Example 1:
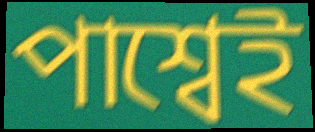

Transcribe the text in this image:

পাশ্বেই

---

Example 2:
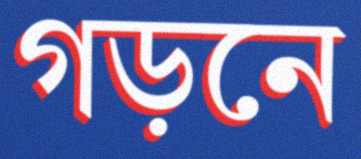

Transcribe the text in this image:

গড়নে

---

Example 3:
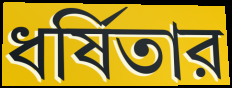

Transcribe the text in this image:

ধর্ষিতার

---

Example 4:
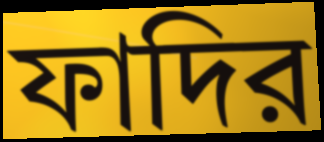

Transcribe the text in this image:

ফাদির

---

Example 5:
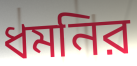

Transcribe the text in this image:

ধমনির